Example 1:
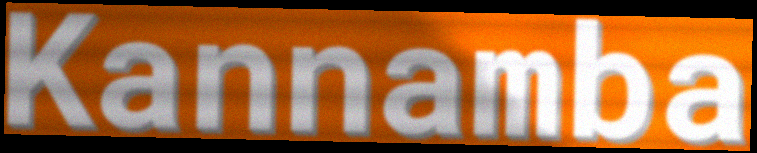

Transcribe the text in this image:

Kannamba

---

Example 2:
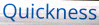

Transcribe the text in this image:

Quickness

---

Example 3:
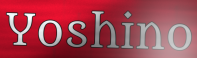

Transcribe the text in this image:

Yoshino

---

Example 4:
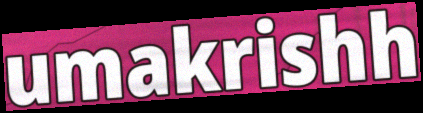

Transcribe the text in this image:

umakrishh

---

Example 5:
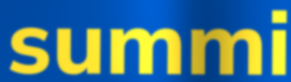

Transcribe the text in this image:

summi